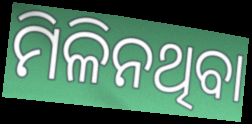
ମିଳିନଥିବା